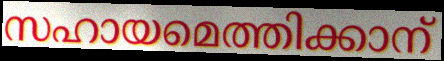
സഹായമെത്തിക്കാന്